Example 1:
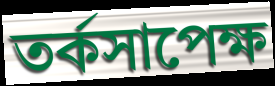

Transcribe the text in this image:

তর্কসাপেক্ষ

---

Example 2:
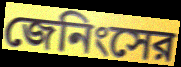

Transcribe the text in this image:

জেনিংসের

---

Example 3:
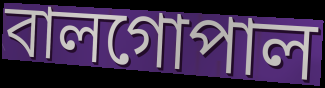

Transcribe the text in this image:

বালগোপাল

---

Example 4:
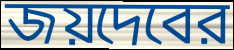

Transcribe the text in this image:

জয়দেবের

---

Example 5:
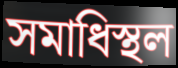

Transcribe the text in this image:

সমাধিস্থল